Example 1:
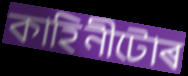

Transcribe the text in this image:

কাহিনীটোৰ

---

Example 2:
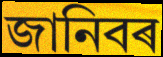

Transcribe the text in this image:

জানিবৰ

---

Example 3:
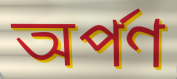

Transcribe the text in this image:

অৰ্পণ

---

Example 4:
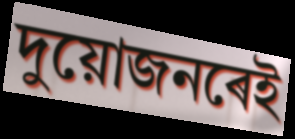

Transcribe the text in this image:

দুয়োজনৰেই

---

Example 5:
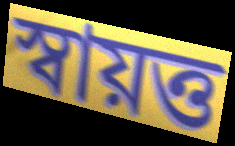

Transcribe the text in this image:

স্বায়ত্ত